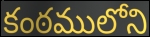
కంఠములోని